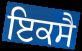
ਇਕਸੈ